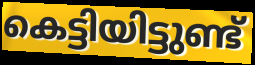
കെട്ടിയിട്ടുണ്ട്